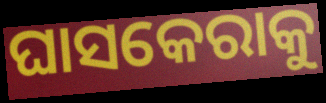
ଘାସକେରାକୁ